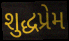
શુદ્ધપ્રેમ